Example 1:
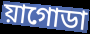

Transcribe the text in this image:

য়াগোডা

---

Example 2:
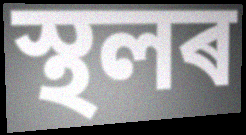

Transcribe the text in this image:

স্থলৰ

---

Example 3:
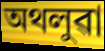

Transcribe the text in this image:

অথলুৱা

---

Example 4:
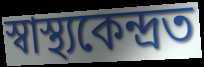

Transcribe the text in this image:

স্বাস্থ্যকেন্দ্ৰত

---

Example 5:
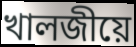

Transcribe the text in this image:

খালজীয়ে